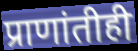
प्राणांतीही